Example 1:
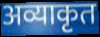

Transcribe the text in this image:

अव्याकृत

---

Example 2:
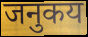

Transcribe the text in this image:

जनुकय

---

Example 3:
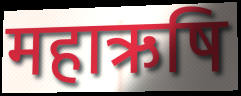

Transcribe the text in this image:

महाऋषि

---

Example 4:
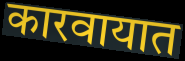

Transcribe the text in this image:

कारवायात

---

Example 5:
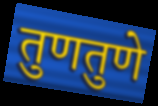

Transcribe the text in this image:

तुणतुणे